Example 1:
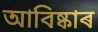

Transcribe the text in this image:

আবিষ্কাৰ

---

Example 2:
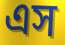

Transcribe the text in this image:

এস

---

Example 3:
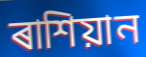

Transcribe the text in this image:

ৰাশিয়ান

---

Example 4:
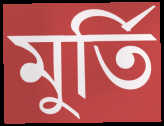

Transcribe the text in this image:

মুৰ্তি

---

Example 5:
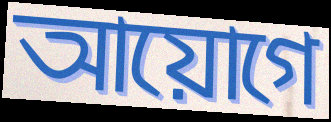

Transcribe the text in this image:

আয়োগে